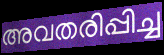
അവതരിപ്പിച്ച